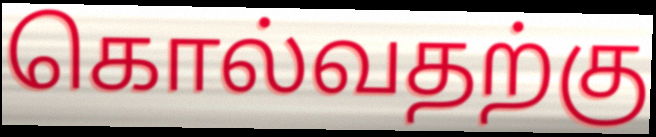
கொல்வதற்கு